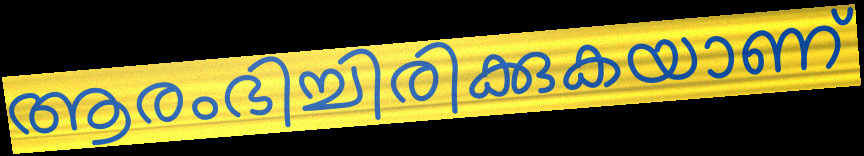
ആരംഭിച്ചിരിക്കുകയാണ്